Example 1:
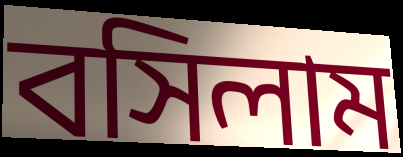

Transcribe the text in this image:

বসিলাম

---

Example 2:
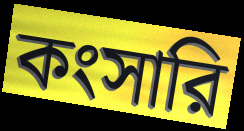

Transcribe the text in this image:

কংসারি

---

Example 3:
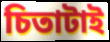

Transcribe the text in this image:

চিতাটাই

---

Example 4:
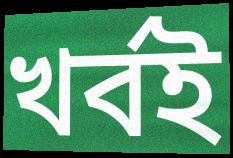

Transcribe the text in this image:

খর্বই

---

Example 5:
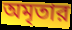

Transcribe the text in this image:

অমৃতার